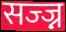
सज्ज्न